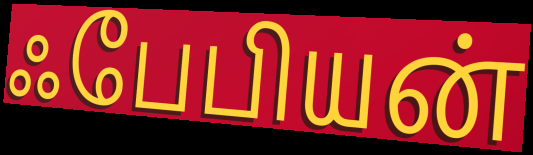
ஃபேபியன்